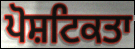
ਪੋਸ਼ਟਿਕਤਾ